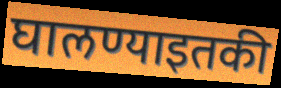
घालण्याइतकी